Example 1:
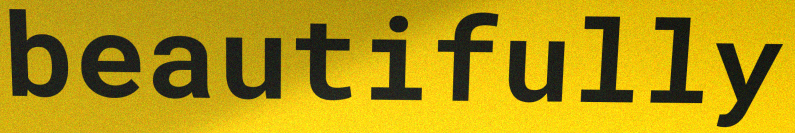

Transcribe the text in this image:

beautifully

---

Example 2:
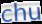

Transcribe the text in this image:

chu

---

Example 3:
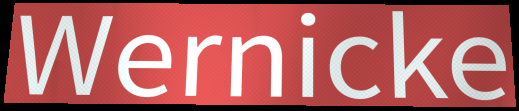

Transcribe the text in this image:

Wernicke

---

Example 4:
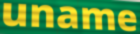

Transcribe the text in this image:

uname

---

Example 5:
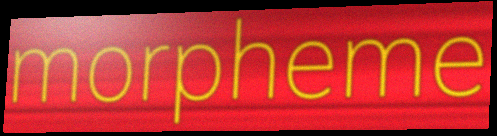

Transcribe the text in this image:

morpheme